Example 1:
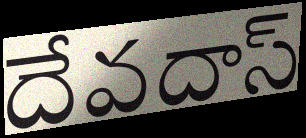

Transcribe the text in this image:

దేవదాస్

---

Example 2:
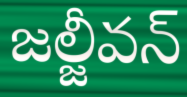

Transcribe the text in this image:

జల్జీవన్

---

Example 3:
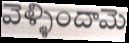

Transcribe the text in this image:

వెళ్ళిందామె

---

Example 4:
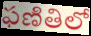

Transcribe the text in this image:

ఫణితిలో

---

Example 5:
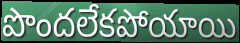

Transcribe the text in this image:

పొందలేకపోయాయి